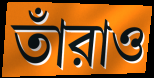
তাঁরাও